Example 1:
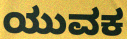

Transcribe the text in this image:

ಯುವಕ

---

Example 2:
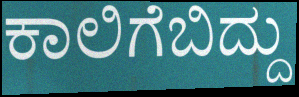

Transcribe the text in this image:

ಕಾಲಿಗೆಬಿದ್ದು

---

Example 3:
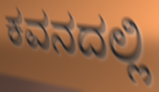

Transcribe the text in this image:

ಕವನದಲ್ಲಿ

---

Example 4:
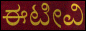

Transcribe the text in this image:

ಈಟೀವಿ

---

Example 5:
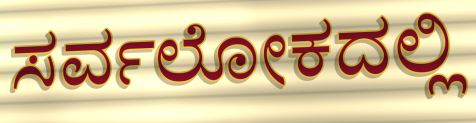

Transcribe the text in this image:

ಸರ್ವಲೋಕದಲ್ಲಿ